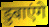
डुबाएंगे